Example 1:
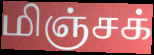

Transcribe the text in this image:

மிஞ்சக்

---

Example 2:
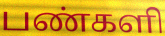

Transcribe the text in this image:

பண்களி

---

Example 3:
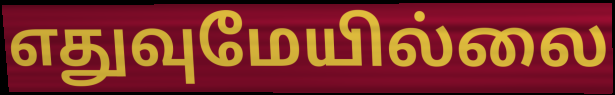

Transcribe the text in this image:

எதுவுமேயில்லை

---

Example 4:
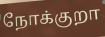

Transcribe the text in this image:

நோக்குறா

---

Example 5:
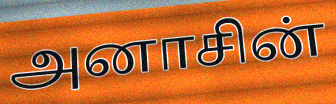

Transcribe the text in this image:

அனாசின்